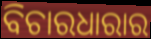
ବିଚାରଧାରାର